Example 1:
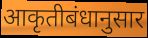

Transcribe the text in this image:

आकृतीबंधानुसार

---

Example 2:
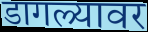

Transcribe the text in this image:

डागल्यावर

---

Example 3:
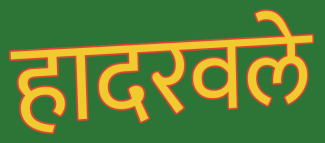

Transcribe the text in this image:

हादरवले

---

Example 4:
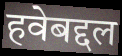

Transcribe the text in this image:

हवेबद्दल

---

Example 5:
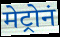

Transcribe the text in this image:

मेट्रोनं